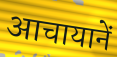
आचायानें